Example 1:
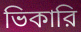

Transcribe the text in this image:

ভিকারি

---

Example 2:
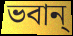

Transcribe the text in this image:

ভবান্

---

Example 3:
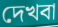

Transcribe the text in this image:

দেখবা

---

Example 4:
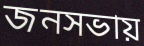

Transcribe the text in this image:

জনসভায়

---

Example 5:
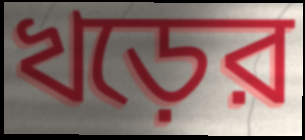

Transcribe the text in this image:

খড়ের